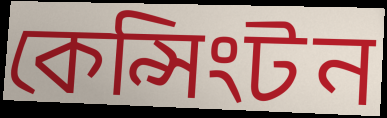
কেন্সিংটন